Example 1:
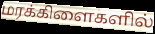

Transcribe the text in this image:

மரக்கிளைகளில்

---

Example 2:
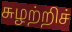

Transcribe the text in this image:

சுழற்றிச்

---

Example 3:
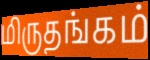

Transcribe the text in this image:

மிருதங்கம்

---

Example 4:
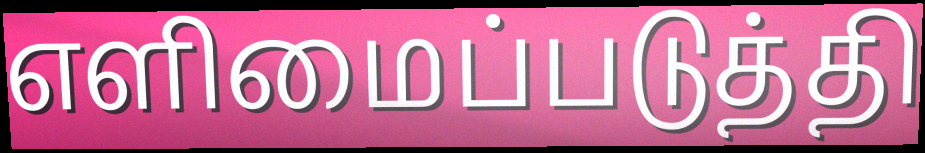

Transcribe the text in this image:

எளிமைப்படுத்தி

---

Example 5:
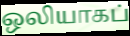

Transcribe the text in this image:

ஒலியாகப்